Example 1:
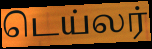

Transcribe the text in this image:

டெய்லர்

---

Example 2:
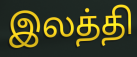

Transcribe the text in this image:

இலத்தி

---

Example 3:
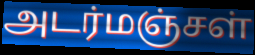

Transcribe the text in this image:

அடர்மஞ்சள்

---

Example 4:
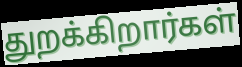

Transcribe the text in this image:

துறக்கிறார்கள்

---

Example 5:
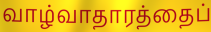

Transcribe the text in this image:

வாழ்வாதாரத்தைப்